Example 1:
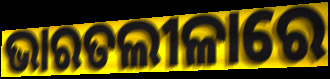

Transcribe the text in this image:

ଭାରତଲୀଳାରେ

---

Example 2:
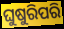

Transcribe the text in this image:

ଘୁଷୁରିପରି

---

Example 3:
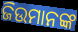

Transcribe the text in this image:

ଜିଉମାନଙ୍କ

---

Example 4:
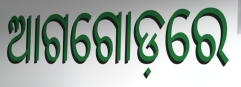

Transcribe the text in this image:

ଆଗଗୋଡ଼ରେ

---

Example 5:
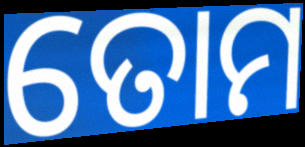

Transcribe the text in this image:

ତୋମ